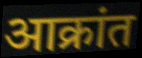
आक्रांत